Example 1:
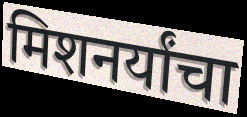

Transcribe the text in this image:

मिशनर्यांचा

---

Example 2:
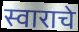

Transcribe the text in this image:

स्वाराचे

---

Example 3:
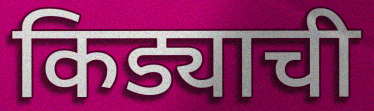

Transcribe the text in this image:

किड्याची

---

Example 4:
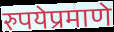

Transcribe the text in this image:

रुपयेप्रमाणे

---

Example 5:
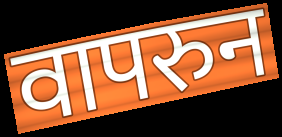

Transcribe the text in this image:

वापरुन